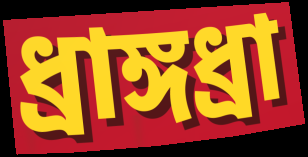
ধ্রাঙ্গধ্রা